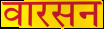
वारसन